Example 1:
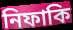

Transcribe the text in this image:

নিফাকি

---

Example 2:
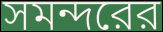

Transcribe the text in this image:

সমন্দরের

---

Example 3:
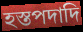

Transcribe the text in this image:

হস্তপদাদি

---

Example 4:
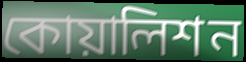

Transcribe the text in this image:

কোয়ালিশন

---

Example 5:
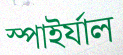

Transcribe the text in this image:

স্পাইর্যাল